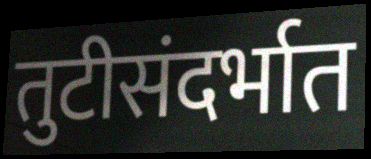
तुटीसंदर्भात